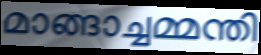
മാങ്ങാച്ചമ്മന്തി